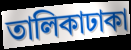
তালিকাঢাকা